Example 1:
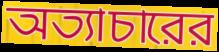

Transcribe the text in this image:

অত্যাচারের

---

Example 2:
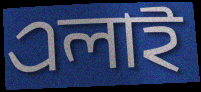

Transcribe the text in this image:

এলাই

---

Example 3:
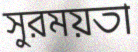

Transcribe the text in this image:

সুরময়তা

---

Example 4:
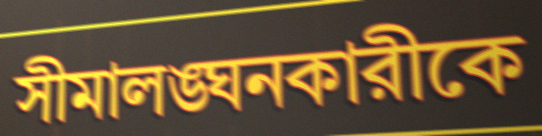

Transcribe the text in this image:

সীমালঙ্ঘনকারীকে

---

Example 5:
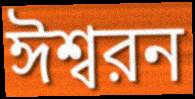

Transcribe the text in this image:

ঈশ্বরন